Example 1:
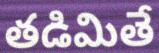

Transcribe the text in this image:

తడిమితే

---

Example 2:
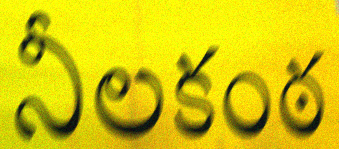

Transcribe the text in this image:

నీలకంఠ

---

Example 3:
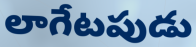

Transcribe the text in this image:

లాగేటపుడు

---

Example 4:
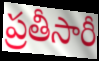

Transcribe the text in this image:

ప్రతీసారీ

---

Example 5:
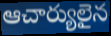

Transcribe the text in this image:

ఆచార్యులైన